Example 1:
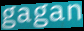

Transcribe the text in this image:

gagan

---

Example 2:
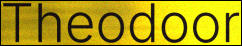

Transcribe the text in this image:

Theodoor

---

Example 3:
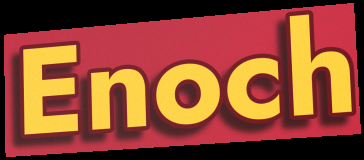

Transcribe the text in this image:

Enoch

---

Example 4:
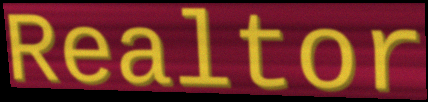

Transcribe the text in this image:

Realtor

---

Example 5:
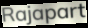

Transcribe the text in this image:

Rajapart